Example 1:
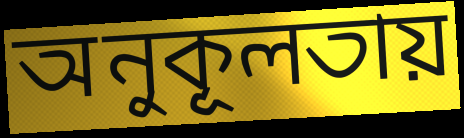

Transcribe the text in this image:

অনুকূলতায়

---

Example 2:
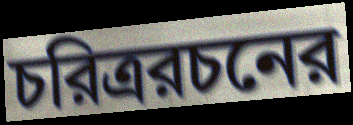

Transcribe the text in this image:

চরিত্ররচনের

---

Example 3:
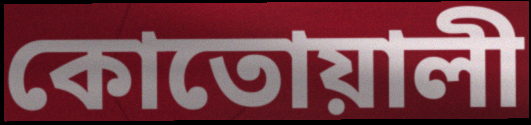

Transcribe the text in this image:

কোতোয়ালী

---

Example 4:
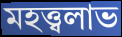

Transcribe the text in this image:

মহত্ত্বলাভ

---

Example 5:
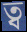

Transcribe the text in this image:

ত্ব